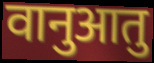
वानुआतु